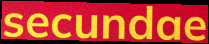
secundae